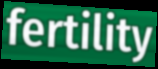
fertility